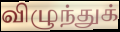
விழுந்துக்